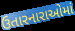
ઉતારનારાઓમાં